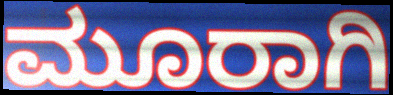
ಮೂರಾಗಿ